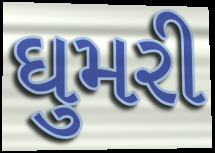
ઘુમરી